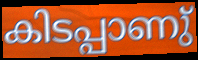
കിടപ്പാണു്